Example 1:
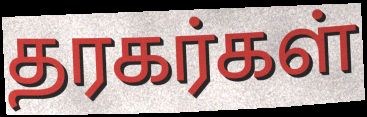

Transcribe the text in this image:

தரகர்கள்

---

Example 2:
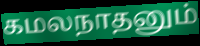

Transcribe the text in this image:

கமலநாதனும்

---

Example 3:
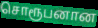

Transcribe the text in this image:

சொரூபனான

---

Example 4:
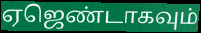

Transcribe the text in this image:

ஏஜெண்டாகவும்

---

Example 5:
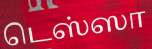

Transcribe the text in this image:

டெஸ்ஸா